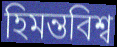
হিমন্তবিশ্ব